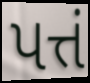
પત્તં